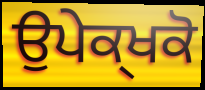
ਉਪੇਕ੍ਖਕੋ